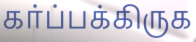
கர்ப்பக்கிருக